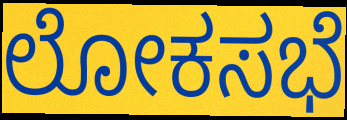
ಲೋಕಸಭೆ